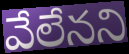
వేలేనని